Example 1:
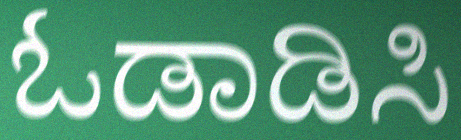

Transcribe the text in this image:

ಓಡಾಡಿಸಿ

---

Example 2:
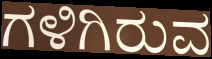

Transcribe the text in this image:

ಗಳಿಗಿರುವ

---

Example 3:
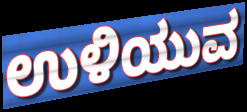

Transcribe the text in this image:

ಉಳಿಯುವ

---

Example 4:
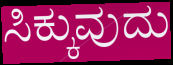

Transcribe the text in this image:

ಸಿಕ್ಕುವುದು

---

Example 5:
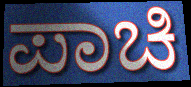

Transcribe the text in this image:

ಪಾಚಿ